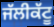
ਜੱਲੀਕੱਟੂ